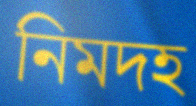
নিমদহ